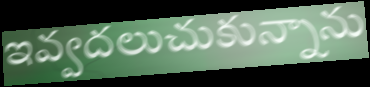
ఇవ్వదలుచుకున్నాను